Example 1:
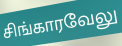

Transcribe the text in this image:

சிங்காரவேலு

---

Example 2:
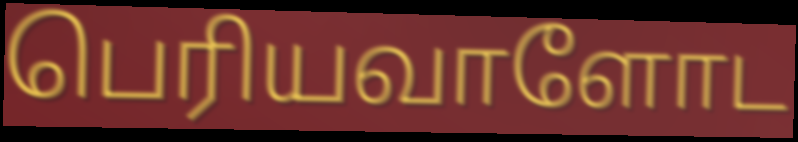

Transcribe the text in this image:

பெரியவாளோட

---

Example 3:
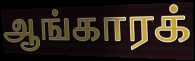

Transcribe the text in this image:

ஆங்காரக்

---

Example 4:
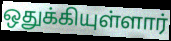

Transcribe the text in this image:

ஒதுக்கியுள்ளார்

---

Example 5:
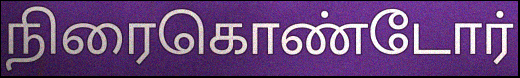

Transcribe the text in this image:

நிரைகொண்டோர்